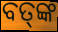
ବତ୍‍ଙ୍କ